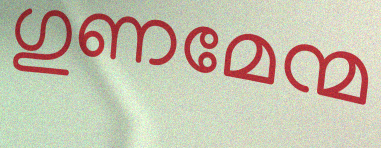
ഗുണമേന്മ